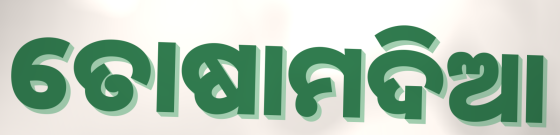
ତୋଷାମଦିଆ